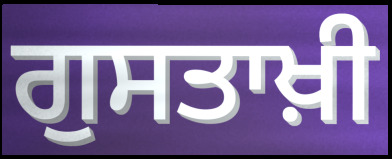
ਗੁਸਤਾਖ਼ੀ